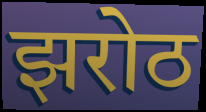
झरोठ